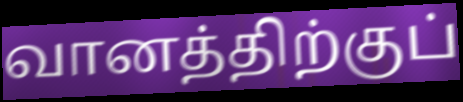
வானத்திற்குப்